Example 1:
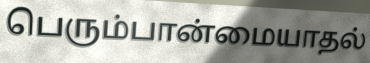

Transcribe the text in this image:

பெரும்பான்மையாதல்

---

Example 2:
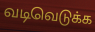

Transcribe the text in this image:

வடிவெடுக்க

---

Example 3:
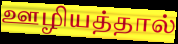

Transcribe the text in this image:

ஊழியத்தால்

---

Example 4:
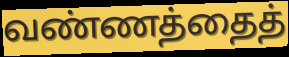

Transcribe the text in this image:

வண்ணத்தைத்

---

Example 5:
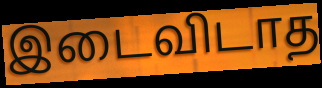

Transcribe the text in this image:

இடைவிடாத